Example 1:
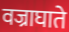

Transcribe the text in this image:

वज्राघाते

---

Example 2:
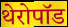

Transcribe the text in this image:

थेरोपॉड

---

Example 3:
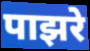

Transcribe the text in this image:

पाझरे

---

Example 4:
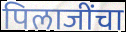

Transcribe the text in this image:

पिलाजींचा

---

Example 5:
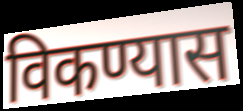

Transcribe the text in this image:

विकण्यास